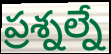
ప్రశ్నల్నే